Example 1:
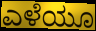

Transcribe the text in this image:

ಎಳೆಯೂ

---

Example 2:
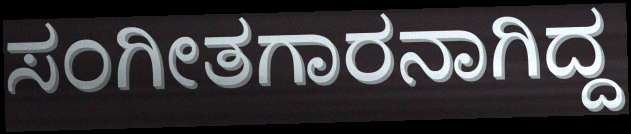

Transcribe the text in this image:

ಸಂಗೀತಗಾರನಾಗಿದ್ದ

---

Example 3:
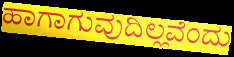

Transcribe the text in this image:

ಹಾಗಾಗುವುದಿಲ್ಲವೆಂದು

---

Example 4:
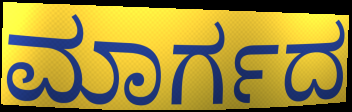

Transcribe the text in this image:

ಮಾರ್ಗದ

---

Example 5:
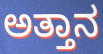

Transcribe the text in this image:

ಅತ್ತಾನ